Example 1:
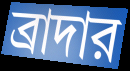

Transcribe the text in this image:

ব্রাদার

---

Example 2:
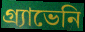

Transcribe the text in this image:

গ্র্যাভেনি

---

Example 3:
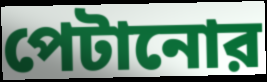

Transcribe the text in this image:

পেটানোর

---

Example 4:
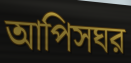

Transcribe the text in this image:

আপিসঘর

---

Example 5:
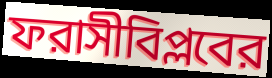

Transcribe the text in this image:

ফরাসীবিপ্লবের